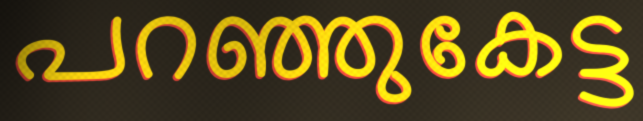
പറഞ്ഞുകേട്ട